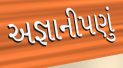
અજ્ઞાનીપણું